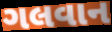
ગલવાન